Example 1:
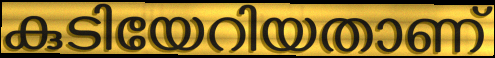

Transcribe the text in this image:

കുടിയേറിയതാണ്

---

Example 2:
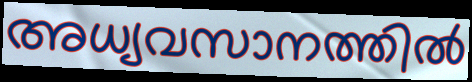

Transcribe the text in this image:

അധ്യവസാനത്തിൽ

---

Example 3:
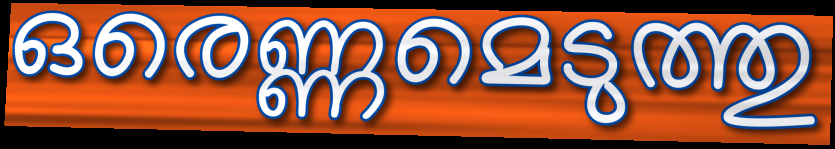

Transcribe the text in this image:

ഒരെണ്ണമെടുത്തു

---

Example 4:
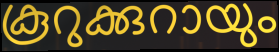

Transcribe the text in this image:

കൂറുക്കുറായും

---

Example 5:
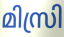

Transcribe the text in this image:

മിസ്രി